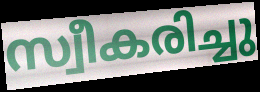
സ്വീകരിച്ചു